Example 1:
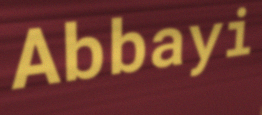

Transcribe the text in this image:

Abbayi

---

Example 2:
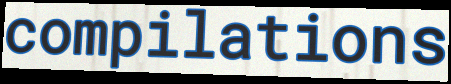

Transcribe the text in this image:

compilations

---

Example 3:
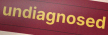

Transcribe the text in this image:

undiagnosed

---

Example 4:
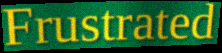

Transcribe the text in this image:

Frustrated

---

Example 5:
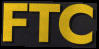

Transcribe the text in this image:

FTC